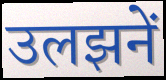
उलझनें